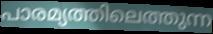
പാരമ്യത്തിലെത്തുന്ന